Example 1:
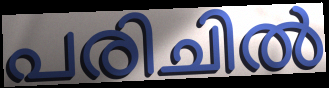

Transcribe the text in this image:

പരിചിൽ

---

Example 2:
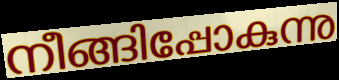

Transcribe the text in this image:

നീങ്ങിപ്പോകുന്നു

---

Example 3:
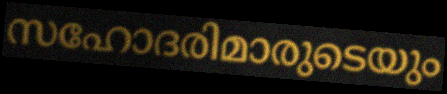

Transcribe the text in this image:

സഹോദരിമാരുടെയും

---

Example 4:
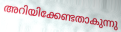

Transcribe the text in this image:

അറിയിക്കേണ്ടതാകുന്നു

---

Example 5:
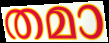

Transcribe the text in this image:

തമാ